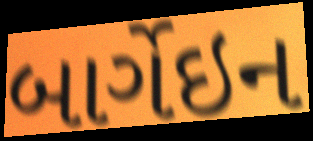
બાર્ગેઇન